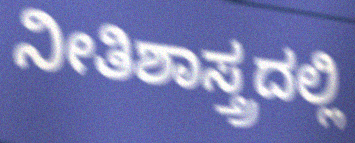
ನೀತಿಶಾಸ್ತ್ರದಲ್ಲಿ